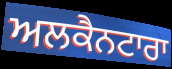
ਅਲਕੈਨਟਾਰਾ